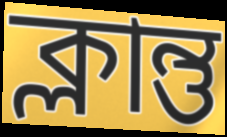
ক্লান্তু